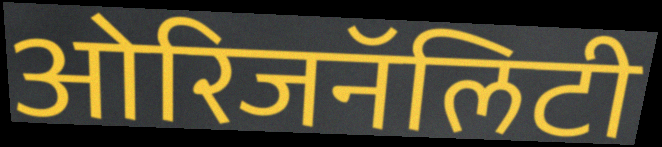
ओरिजनॅलिटी